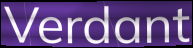
Verdant